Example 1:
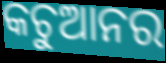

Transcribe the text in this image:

କଚୁଆନର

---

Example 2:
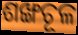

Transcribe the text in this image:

ଶଙ୍ଖଚୂଳ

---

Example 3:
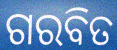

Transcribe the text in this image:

ଗରବିତ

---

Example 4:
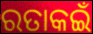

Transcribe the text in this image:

ରତାକଇଁ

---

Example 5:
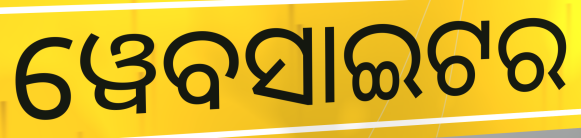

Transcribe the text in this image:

ୱେବସାଇଟର